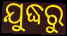
ଯୁଦ୍ଧରୁ